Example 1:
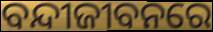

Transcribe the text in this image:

ବନ୍ଦୀଜୀବନରେ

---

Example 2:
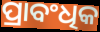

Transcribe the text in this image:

ପ୍ରାବଂଧିକ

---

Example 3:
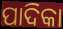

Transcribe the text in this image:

ପାଦିକା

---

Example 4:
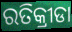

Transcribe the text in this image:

ରତିକ୍ରୀଡା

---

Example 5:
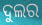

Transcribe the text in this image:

ଦୁଲର